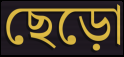
ছেড়ো